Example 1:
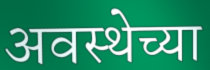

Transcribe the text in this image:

अवस्थेच्या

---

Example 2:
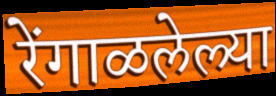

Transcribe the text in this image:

रेंगाळलेल्या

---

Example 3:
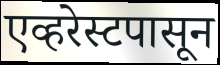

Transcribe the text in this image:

एव्हरेस्टपासून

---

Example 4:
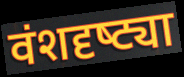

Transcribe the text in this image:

वंशदृष्ट्या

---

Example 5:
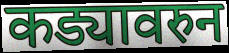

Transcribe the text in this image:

कड्यावरुन